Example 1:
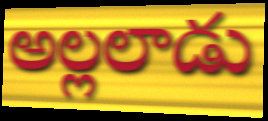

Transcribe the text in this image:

అల్లలాడు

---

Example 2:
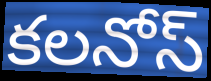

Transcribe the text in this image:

కలనోస్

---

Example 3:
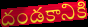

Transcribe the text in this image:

దండకానికి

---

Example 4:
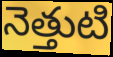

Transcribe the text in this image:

నెత్తుటి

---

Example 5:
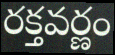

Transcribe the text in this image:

రక్తవర్ణం